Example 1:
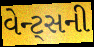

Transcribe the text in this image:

વેન્ટ્સની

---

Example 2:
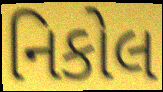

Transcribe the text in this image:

નિકોલ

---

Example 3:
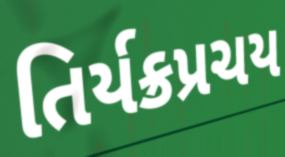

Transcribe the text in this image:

તિર્યક્રપ્રચય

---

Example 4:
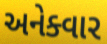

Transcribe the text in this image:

અનેક્વાર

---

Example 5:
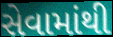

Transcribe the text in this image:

સેવામાંથી